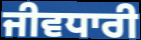
ਜੀਵਧਾਰੀ